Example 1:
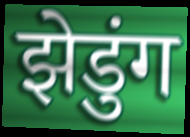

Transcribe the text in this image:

झेडुंग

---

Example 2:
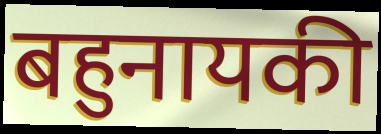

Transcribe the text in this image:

बहुनायकी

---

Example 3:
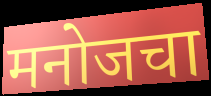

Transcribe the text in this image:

मनोजचा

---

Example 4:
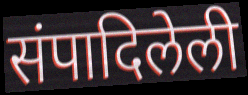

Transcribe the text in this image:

संपादिलेली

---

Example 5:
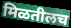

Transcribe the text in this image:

मिळतीलच